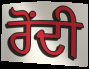
ਰੋਂਦੀ